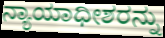
ನ್ಯಾಯಾಧೀಶರನ್ನು